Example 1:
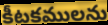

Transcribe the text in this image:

కీటకములను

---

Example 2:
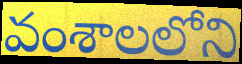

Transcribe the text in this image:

వంశాలలోని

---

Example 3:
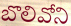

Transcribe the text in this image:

బొలివోని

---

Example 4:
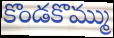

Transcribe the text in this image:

కొండకొమ్ము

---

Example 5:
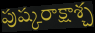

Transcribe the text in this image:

పుష్కరాక్షాశ్చ